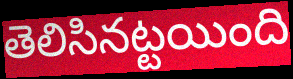
తెలిసినట్టయింది